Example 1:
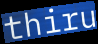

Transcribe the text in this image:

thiru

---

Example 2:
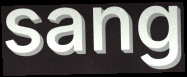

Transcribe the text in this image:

sang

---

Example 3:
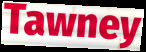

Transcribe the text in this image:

Tawney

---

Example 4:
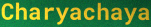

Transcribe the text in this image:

Charyachaya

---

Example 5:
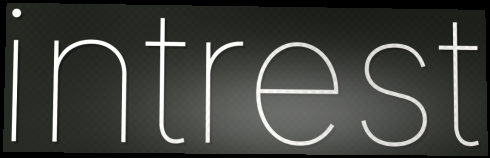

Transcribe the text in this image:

intrest